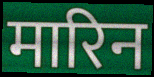
मारिन